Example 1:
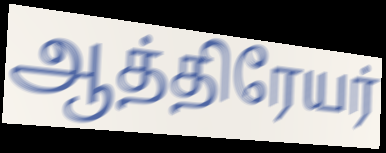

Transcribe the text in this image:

ஆத்திரேயர்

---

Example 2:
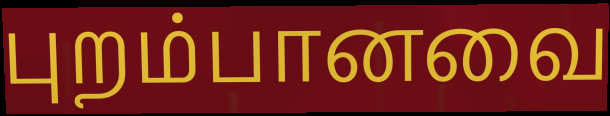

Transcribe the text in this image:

புறம்பானவை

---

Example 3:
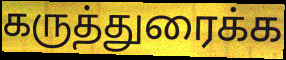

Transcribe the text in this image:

கருத்துரைக்க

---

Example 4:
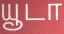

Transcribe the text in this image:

யூடா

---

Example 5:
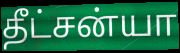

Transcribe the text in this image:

தீட்சன்யா